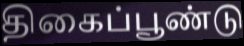
திகைப்பூண்டு